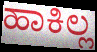
ಹಾಕಿಲ್ಲ